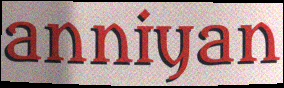
anniyan